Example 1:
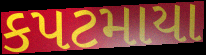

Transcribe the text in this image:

કપટમાયા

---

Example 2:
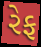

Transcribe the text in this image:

રેફ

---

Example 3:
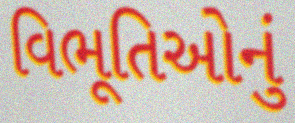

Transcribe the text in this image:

વિભૂતિઓનું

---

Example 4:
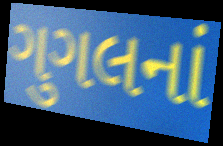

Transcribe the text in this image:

ગુગલનાં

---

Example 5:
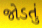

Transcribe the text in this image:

જોડતું